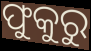
ଫୁକୁରୁ